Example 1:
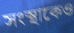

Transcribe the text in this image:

সংস্থাকেও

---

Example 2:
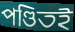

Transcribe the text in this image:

পণ্ডিতই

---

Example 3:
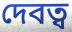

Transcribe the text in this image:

দেবত্ব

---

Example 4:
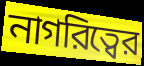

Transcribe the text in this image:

নাগরিত্বের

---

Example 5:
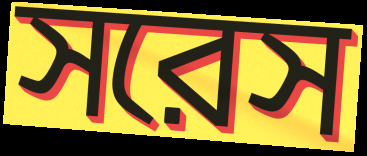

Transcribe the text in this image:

সরেস